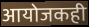
आयोजकही